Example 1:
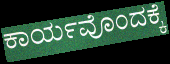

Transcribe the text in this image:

ಕಾರ್ಯವೊಂದಕ್ಕೆ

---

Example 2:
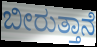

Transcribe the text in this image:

ಬೀರುತ್ತಾನೆ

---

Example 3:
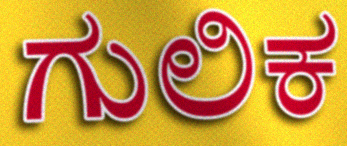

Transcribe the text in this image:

ಗುಲಿಕ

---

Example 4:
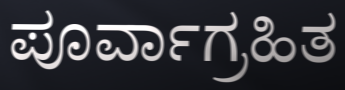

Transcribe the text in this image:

ಪೂರ್ವಾಗ್ರಹಿತ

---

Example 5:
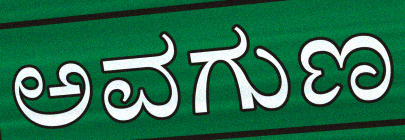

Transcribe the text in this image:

ಅವಗುಣ